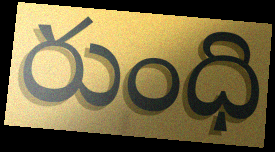
రుంధి